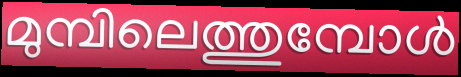
മുമ്പിലെത്തുമ്പോൾ